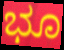
ಭೂ